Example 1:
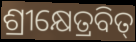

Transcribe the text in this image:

ଶ୍ରୀକ୍ଷେତ୍ରବିତ୍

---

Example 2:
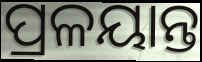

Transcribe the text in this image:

ପ୍ରଳୟାନ୍ତ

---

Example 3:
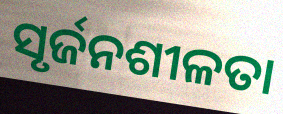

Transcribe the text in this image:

ସୃର୍ଜନଶୀଳତା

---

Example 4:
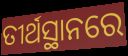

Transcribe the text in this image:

ତୀର୍ଥସ୍ଥାନରେ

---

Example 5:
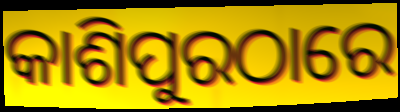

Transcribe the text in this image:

କାଶିପୁରଠାରେ